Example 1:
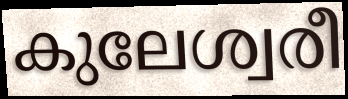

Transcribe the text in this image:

കുലേശ്വരീ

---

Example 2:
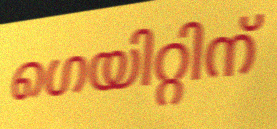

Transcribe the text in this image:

ഗെയിറ്റിന്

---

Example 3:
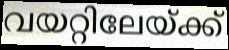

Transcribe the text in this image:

വയറ്റിലേയ്ക്ക്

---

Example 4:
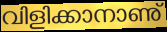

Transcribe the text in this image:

വിളിക്കാനാണു്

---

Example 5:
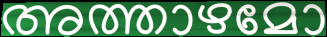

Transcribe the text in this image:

അത്താഴമോ